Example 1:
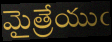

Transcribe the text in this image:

మైత్రేయుఁ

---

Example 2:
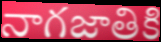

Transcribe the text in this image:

నాగజాతికి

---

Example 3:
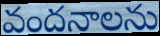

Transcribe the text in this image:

వందనాలను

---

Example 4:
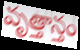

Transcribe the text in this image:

వృత్తాన్తం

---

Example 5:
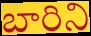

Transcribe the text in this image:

బారిని